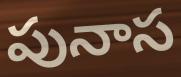
పునాస